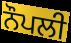
ਨੌਪਲੀ